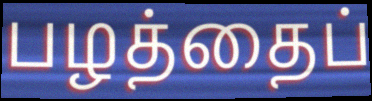
பழத்தைப்